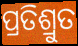
ପ୍ରତିଶ୍ରୁତ